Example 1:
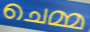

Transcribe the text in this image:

ചെമ്മ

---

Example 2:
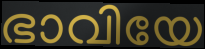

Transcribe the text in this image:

ഭാവിയേ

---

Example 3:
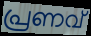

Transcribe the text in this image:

പ്രണവ്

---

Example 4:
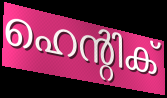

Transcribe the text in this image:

ഹെന്റിക്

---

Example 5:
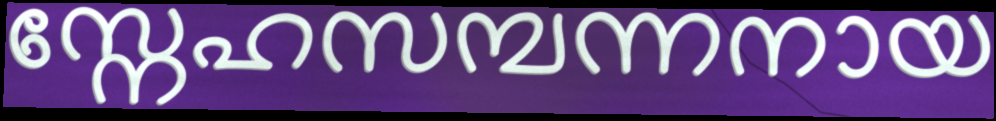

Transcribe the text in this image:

സ്നേഹസമ്പന്നനായ